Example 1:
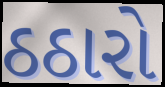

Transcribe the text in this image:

ઠઠારો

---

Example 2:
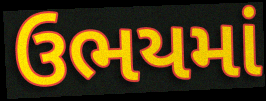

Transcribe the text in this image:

ઉભયમાં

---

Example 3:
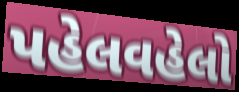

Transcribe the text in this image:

પહેલવહેલો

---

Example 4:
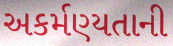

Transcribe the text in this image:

અકર્મણ્યતાની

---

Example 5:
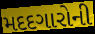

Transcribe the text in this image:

મદદગારોની